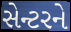
સેન્ટરને